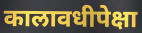
कालावधीपेक्षा